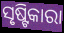
ସୃଷ୍ଟିକାରା